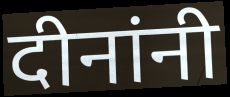
दीनांनी